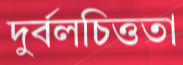
দুর্বলচিত্ততা